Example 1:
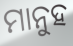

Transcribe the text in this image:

ମାନୁହ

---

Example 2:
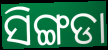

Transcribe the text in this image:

ସିଙ୍ଗଡା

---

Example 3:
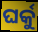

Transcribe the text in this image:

ଘର୍କୁ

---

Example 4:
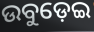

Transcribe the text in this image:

ଉବୁଡ଼େଇ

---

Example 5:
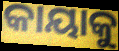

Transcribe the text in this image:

କାୟାକୁ